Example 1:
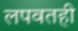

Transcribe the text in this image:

लपवतही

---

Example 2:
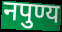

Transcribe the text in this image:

नपुण्य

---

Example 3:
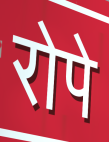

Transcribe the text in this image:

रोपे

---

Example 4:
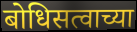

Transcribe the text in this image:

बोधिसत्वाच्या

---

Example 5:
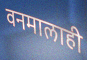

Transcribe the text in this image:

वनमालाही